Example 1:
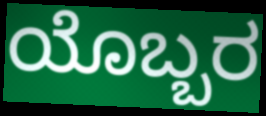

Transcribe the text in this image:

ಯೊಬ್ಬರ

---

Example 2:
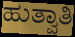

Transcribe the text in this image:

ಹುತ್ವಾತಿ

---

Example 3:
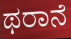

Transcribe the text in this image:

ಥರಾನೆ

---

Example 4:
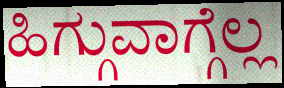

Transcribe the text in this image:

ಹಿಗ್ಗುವಾಗ್ಗೆಲ್ಲ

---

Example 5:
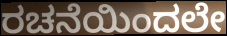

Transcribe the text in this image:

ರಚನೆಯಿಂದಲೇ